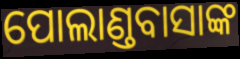
ପୋଲାଣ୍ଡବାସାଙ୍କ